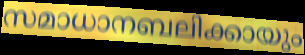
സമാധാനബലിക്കായും